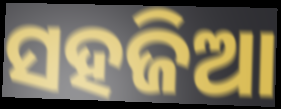
ସହଜିଆ